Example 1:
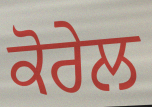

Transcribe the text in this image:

ਕੋਰੇਲ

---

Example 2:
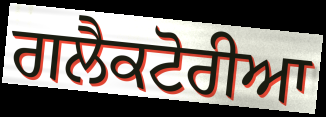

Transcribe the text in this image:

ਗਲੈਕਟੋਰੀਆ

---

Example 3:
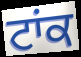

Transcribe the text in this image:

ਟਾਂਕ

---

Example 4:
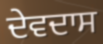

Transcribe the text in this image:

ਦੇਵਦਾਸ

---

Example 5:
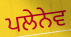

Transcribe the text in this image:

ਪਲੇਨੇਵ